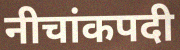
नीचांकपदी